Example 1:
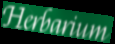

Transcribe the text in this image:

Herbarium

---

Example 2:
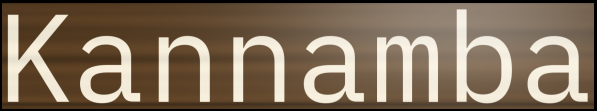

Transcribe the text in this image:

Kannamba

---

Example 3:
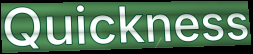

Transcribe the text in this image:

Quickness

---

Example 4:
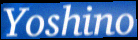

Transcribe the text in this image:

Yoshino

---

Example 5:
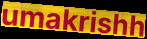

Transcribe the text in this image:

umakrishh